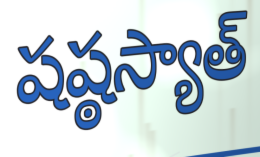
షష్ఠస్యాత్